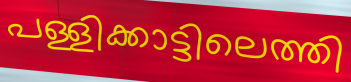
പള്ളിക്കാട്ടിലെത്തി